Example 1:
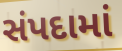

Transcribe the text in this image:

સંપદામાં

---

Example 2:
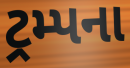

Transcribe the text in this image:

ટ્રમ્પના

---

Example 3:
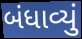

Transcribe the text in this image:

બંધાવ્યું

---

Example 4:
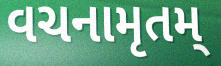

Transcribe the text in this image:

વચનામૃતમ્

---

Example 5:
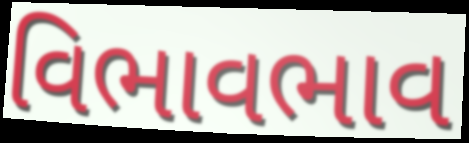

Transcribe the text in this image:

વિભાવભાવ